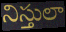
నిస్తులా